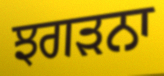
ਝਗੜਨਾ